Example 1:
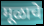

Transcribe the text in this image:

मूळाचे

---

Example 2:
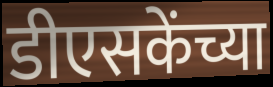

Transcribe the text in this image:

डीएसकेंच्या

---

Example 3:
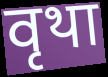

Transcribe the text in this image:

वृथा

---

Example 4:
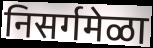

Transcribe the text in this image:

निसर्गमेळा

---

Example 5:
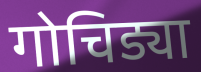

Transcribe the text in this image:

गोचिड्या